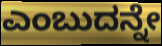
ಎಂಬುದನ್ನೇ